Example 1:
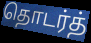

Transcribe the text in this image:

தொடர்த்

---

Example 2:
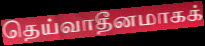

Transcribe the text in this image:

தெய்வாதீனமாகக்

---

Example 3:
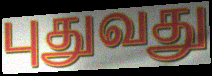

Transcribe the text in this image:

புதுவது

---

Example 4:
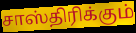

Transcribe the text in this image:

சாஸ்திரிக்கும்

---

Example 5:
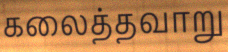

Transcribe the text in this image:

கலைத்தவாறு